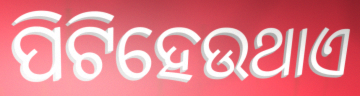
ପିଟିହେଉଥାଏ